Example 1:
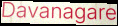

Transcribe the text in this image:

Davanagare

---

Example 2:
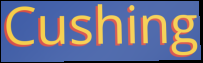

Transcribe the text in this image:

Cushing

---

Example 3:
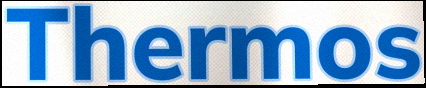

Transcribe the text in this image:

Thermos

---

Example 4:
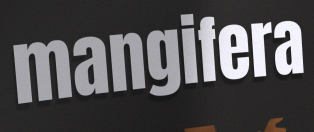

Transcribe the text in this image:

mangifera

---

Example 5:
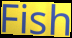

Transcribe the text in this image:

Fish